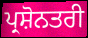
ਪ੍ਰਸ਼ੋਨਤਰੀ